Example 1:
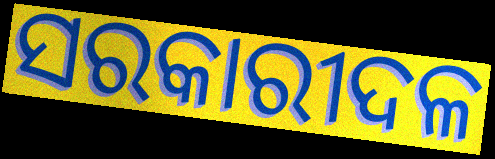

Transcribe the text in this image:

ସରକାରୀଦଳ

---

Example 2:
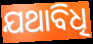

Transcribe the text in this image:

ଯଥାବିଧି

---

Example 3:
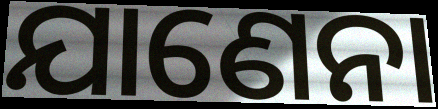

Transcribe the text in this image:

ଯାଣେନା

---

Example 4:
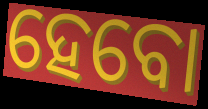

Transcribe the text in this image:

ହେବୋ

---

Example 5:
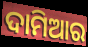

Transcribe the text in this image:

ଦାମିଆର